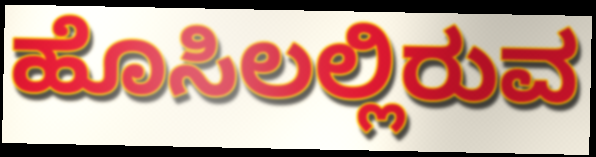
ಹೊಸಿಲಲ್ಲಿರುವ